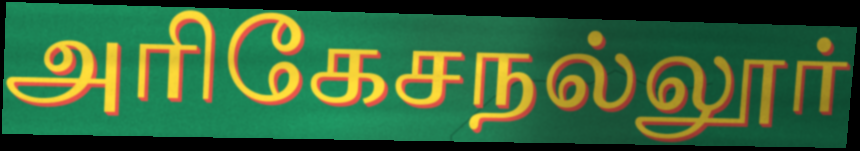
அரிகேசநல்லூர்